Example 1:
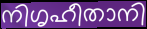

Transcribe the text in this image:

നിഗൃഹീതാനി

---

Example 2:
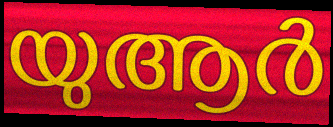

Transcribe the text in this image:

യുആർ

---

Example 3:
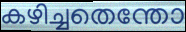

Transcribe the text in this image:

കഴിച്ചതെന്തോ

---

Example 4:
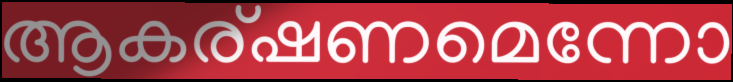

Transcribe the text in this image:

ആകര്ഷണമെന്നോ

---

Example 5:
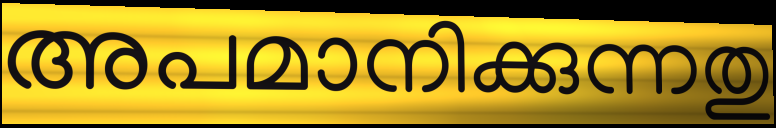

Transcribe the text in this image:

അപമാനിക്കുന്നതു